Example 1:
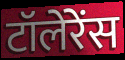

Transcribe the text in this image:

टॉलेरेंस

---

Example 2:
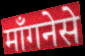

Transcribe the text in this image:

माँगनेसे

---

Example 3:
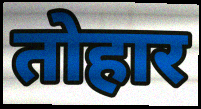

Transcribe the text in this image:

तोहार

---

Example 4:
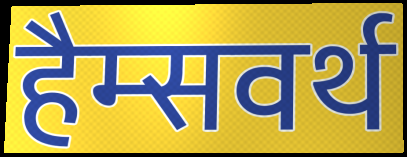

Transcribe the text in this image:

हैम्सवर्थ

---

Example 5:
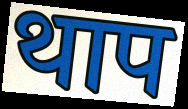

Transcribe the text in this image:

थाप